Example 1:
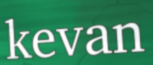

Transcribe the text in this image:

kevan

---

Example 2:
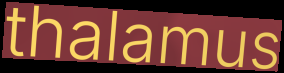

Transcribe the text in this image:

thalamus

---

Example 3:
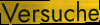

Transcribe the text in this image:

Versuche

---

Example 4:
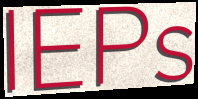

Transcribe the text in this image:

IEPs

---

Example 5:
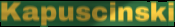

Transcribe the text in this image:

Kapuscinski